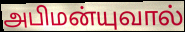
அபிமன்யுவால்